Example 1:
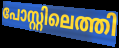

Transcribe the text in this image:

പോസ്റ്റിലെത്തി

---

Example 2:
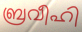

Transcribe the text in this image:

ബ്രവീഹി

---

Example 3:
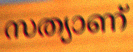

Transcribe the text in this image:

സത്യാണ്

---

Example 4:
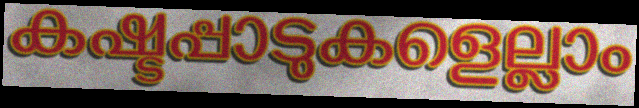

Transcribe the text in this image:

കഷ്ടപ്പാടുകളെല്ലാം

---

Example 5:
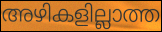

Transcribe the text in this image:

അഴികളില്ലാത്ത